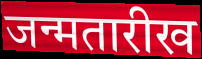
जन्मतारीख